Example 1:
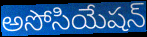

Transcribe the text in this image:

అసోసియేషన్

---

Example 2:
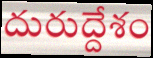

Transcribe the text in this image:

దురుద్దేశం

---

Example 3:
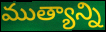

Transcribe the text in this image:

ముత్యాన్ని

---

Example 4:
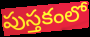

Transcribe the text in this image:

పుస్తకంలో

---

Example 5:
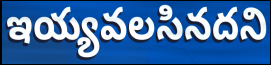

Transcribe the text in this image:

ఇయ్యవలసినదని